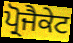
ਪ੍ਰੋਜੈਕੇਟ